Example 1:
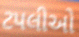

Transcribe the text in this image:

ટપલીઓ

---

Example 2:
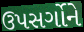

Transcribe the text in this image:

ઉપસર્ગોને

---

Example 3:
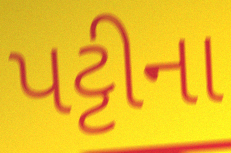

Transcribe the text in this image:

પટ્ટીના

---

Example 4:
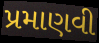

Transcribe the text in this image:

પ્રમાણવી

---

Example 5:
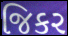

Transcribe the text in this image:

જિકર